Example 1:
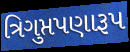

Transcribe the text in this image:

ત્રિગુપ્તપણારૂપ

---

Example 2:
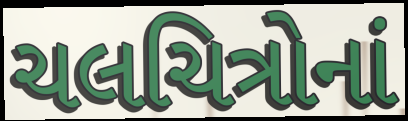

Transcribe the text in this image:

ચલચિત્રોનાં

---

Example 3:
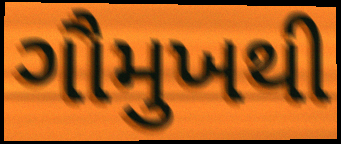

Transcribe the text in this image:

ગૌમુખથી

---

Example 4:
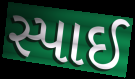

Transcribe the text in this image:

સ્પાઈ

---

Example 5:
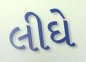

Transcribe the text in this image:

લીઘે